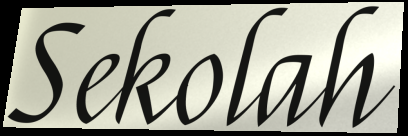
Sekolah